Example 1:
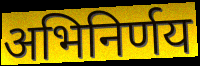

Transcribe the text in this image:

अभिनिर्णय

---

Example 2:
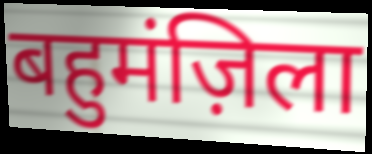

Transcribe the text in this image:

बहुमंज़िला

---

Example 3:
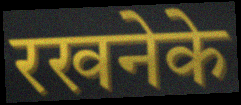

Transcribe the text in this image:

रखनेके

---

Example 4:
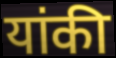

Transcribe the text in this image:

यांकी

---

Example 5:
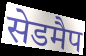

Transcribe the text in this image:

सेडमैप